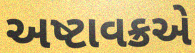
અષ્ટાવક્રએ